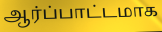
ஆர்ப்பாட்டமாக